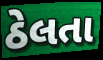
ઠેલતા